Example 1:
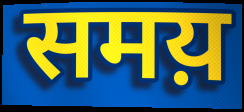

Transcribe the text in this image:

समय़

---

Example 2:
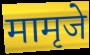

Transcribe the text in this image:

मामृजे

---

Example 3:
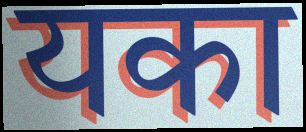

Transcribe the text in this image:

यका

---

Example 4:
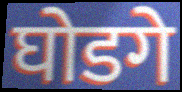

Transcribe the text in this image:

घोडगे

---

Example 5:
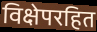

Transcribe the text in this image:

विक्षेपरहित